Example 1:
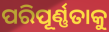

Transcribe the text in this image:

ପରିପୂର୍ଣ୍ଣତାକୁ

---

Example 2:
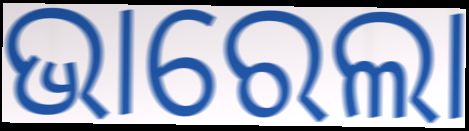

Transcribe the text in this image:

ଭାରେଲା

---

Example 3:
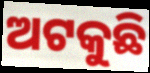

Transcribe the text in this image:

ଅଟକୁଛି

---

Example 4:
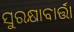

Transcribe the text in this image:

ସୁରକ୍ଷାବାର୍ତ୍ତା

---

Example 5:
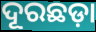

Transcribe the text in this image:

ଦୂରଛଡ଼ା